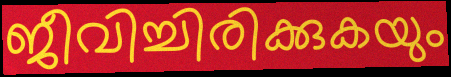
ജീവിച്ചിരിക്കുകയും